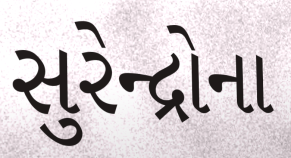
સુરેન્દ્રોના